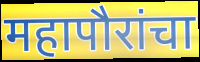
महापौरांचा